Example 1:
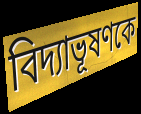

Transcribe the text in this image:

বিদ্যাভূষণকে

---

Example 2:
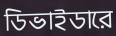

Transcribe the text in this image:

ডিভাইডারে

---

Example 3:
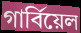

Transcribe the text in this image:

গার্বিয়েল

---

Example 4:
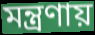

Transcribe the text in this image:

মন্ত্রণায়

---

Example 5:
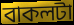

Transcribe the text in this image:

বাকলটা